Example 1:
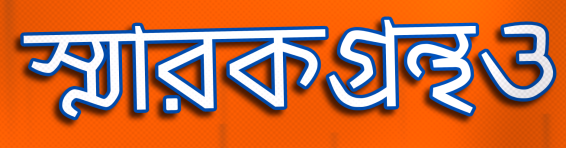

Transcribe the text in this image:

স্মারকগ্রন্থও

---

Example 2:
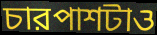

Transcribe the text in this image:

চারপাশটাও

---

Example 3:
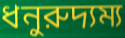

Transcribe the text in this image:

ধনুরুদ্যম্য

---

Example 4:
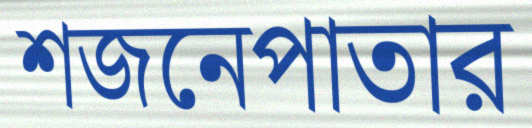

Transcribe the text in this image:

শজনেপাতার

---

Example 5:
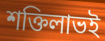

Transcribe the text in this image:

শক্তিলাভই